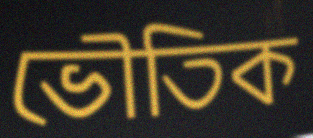
ভৌতিক